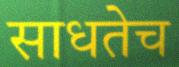
साधतेच